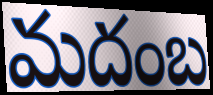
మదంబ